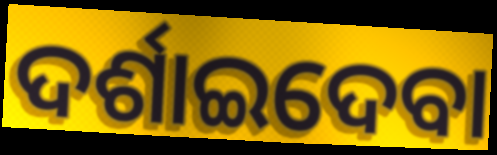
ଦର୍ଶାଇଦେବା